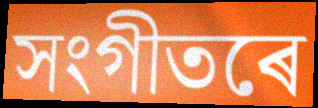
সংগীতৰে